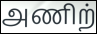
அணிற்